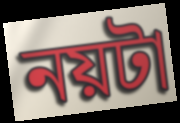
নয়টা